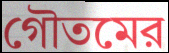
গৌতমের